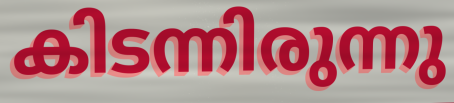
കിടന്നിരുന്നു